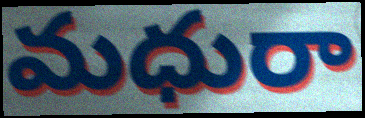
మధురా